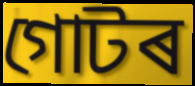
গোটৰ